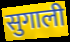
सुगाली